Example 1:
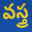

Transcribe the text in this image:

వస్త్ర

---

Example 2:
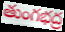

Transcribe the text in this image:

తుంగభద్ర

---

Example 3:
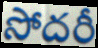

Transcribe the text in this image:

సోదరీ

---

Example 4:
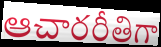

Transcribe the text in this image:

ఆచారరీతిగా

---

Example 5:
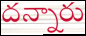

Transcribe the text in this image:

దన్నారు